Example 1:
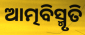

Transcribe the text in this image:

ଆତ୍ମବିସ୍ମୃତି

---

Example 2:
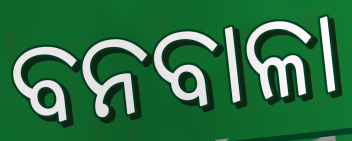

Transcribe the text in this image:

ବନବାଳା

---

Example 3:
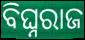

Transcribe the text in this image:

ବିଘ୍ନରାଜ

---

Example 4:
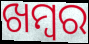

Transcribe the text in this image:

ଖମ୍ୱର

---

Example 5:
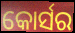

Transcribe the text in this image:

କୋର୍ସର